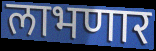
लाभणार